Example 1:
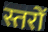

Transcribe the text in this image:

स्तरों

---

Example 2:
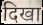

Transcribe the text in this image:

दिखा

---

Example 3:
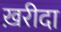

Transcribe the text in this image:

ख़रीदा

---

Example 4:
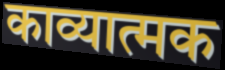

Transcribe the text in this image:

काव्यात्मक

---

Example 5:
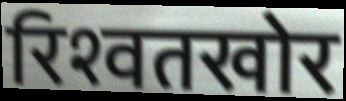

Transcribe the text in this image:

रिश्वतखोर